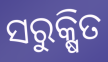
ସରୁକ୍ଷିତ